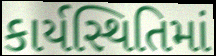
કાર્યસ્થિતિમાં